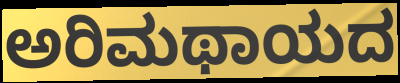
ಅರಿಮಥಾಯದ